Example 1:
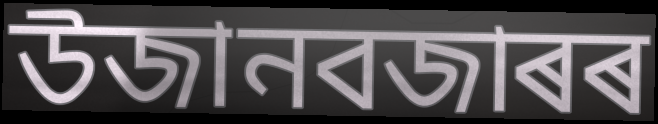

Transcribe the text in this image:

উজানবজাৰৰ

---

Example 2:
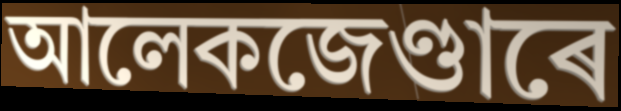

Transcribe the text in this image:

আলেকজেণ্ডাৰে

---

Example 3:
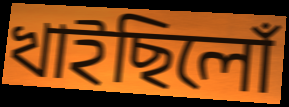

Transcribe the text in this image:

খাইছিলোঁ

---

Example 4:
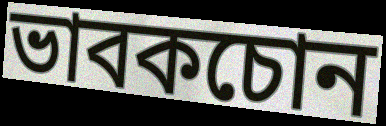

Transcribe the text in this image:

ভাবকচোন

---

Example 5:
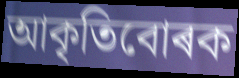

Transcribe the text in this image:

আকৃতিবোৰক